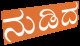
ನುಡಿದ